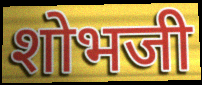
शोभजी